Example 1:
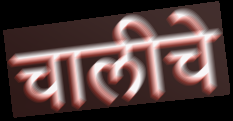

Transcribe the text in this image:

चालीचे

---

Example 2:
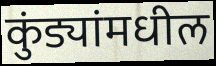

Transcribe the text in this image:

कुंड्यांमधील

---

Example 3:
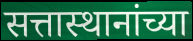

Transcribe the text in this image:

सत्तास्थानांच्या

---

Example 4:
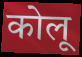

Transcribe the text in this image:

कोलू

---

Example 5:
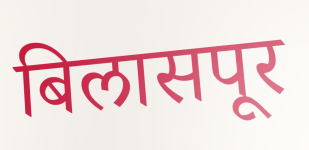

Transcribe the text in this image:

बिलासपूर